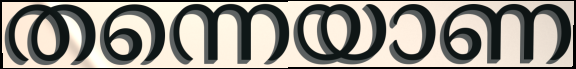
തന്നെയാണ